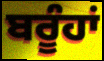
ਬਰੂੰਹਾਂ